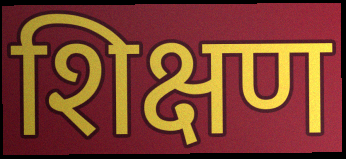
शिक्षण